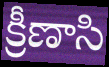
క్రీణాసి